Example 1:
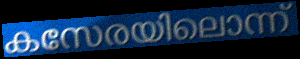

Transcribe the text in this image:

കസേരയിലൊന്ന്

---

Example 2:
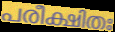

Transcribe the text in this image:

പരീക്ഷിതഃ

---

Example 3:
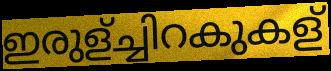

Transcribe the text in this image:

ഇരുള്ച്ചിറകുകള്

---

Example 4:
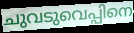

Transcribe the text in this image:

ചുവടുവെപ്പിനെ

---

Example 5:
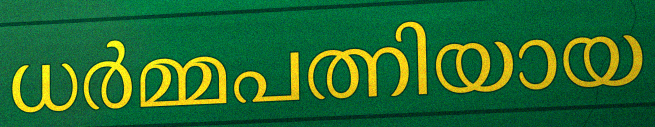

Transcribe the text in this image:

ധർമ്മപത്നിയായ